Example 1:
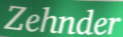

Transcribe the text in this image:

Zehnder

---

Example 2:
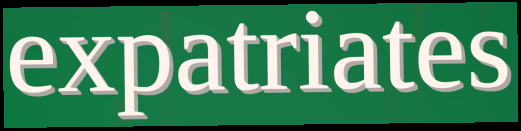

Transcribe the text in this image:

expatriates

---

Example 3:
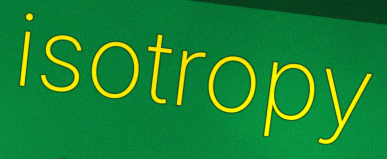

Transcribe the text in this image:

isotropy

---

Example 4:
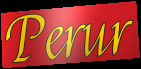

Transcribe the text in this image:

Perur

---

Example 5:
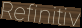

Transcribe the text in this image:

Refinitiv